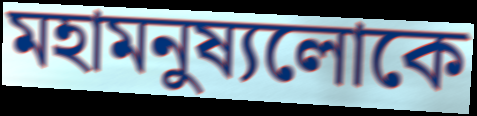
মহামনুষ্যলোকে